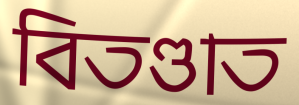
বিতণ্ডাত